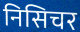
निसिचर